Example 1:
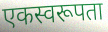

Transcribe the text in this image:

एकस्वरूपता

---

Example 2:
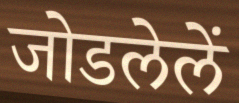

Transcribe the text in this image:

जोडलेलें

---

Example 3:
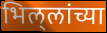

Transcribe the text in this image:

भिल्लांच्या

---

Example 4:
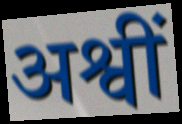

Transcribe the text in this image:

अश्वीं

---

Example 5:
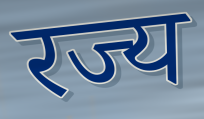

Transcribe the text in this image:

रज्य